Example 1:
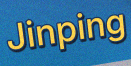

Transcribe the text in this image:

Jinping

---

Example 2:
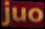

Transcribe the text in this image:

juo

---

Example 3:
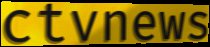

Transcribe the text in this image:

ctvnews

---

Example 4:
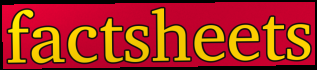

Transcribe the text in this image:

factsheets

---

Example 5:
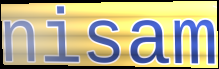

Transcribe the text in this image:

nisam